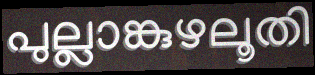
പുല്ലാങ്കുഴലൂതി